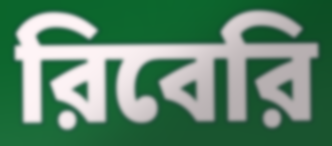
রিবেরি